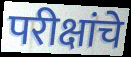
परीक्षांचे